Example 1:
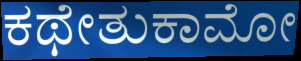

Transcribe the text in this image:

ಕಥೇತುಕಾಮೋ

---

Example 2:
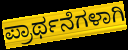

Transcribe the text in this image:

ಪ್ರಾರ್ಥನೆಗಳಾಗಿ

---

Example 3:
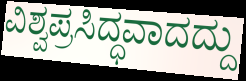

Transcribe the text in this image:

ವಿಶ್ವಪ್ರಸಿದ್ಧವಾದದ್ದು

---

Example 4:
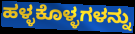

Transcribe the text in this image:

ಹಳ್ಳಕೊಳ್ಳಗಳನ್ನು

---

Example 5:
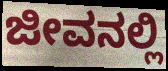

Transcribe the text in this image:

ಜೀವನಲ್ಲಿ